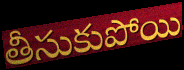
తీసుకుపోయి